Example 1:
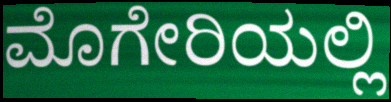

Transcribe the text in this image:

ಮೊಗೇರಿಯಲ್ಲಿ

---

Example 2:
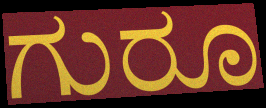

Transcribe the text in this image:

ಗುರೂ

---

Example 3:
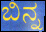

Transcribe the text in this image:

ಬಿನ್ನ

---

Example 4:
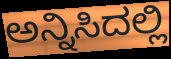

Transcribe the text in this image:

ಅನ್ನಿಸಿದಲ್ಲಿ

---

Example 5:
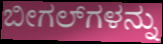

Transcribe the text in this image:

ಬೀಗಲ್‌ಗಳನ್ನು